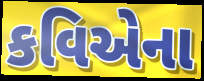
કવિએના